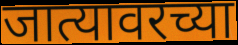
जात्यावरच्या